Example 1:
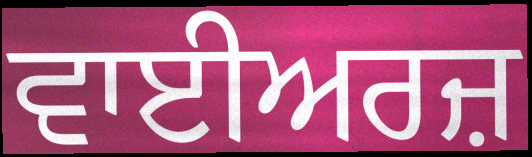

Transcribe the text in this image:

ਵਾਈਅਰਜ਼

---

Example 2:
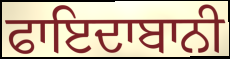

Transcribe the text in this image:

ਫਾਇਦਾਬਾਨੀ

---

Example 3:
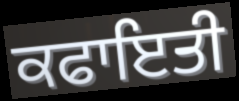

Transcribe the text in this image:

ਕਫਾਇਤੀ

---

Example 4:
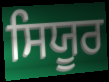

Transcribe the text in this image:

ਸਿਯੂਰ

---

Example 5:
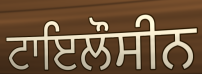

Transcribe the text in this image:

ਟਾਇਲੌਸੀਨ